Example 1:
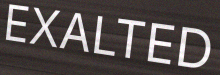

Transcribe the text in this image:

EXALTED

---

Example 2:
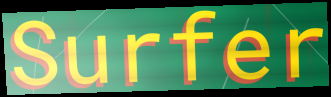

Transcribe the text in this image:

Surfer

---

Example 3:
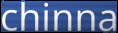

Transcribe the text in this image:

chinna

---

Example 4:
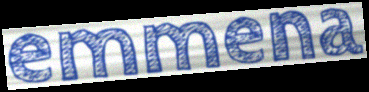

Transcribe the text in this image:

emmena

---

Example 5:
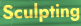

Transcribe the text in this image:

Sculpting